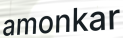
amonkar